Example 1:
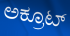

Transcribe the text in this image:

ಅಕ್ರೂಟ್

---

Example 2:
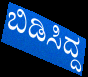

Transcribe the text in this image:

ಬಿಡಿಸಿದ್ದ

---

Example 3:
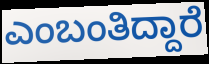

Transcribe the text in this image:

ಎಂಬಂತಿದ್ದಾರೆ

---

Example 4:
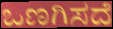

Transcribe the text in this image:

ಒಣಗಿಸದೆ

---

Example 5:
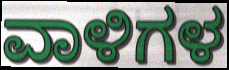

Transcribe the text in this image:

ವಾಳಿಗಳ